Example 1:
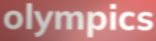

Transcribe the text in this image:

olympics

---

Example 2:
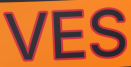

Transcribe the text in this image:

VES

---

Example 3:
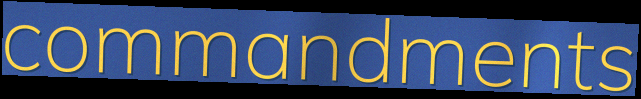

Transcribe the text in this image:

commandments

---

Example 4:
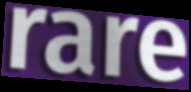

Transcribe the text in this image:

rare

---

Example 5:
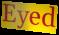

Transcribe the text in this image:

Eyed